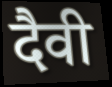
दैवी